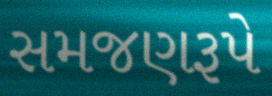
સમજણરૂપે